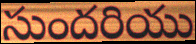
సుందరియు